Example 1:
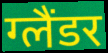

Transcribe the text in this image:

ग्लैंडर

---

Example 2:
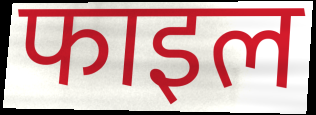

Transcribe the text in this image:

फाइल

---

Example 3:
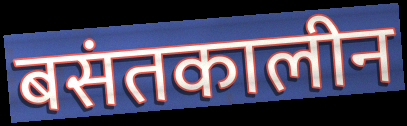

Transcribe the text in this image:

बसंतकालीन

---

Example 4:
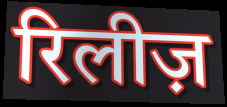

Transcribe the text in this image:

रिलीज़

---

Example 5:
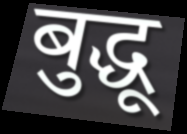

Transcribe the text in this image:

बुद्धू